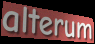
alterum